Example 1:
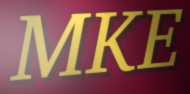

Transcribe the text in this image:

MKE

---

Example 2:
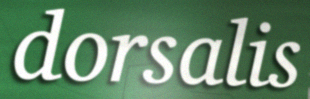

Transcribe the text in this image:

dorsalis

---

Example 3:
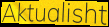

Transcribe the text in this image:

Aktualisht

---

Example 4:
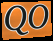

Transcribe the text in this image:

QO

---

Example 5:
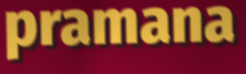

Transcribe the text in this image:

pramana